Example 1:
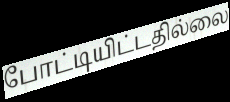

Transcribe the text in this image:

போட்டியிட்டதில்லை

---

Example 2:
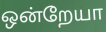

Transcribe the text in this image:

ஒன்றேயா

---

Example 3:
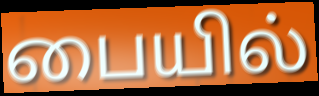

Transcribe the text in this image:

பையில்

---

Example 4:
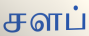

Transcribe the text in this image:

சளப்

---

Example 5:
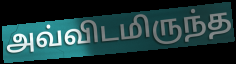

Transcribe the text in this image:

அவ்விடமிருந்த